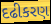
દઢીકરણ